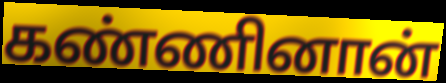
கண்ணினான்